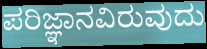
ಪರಿಜ್ಞಾನವಿರುವುದು